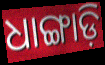
ଧାଙ୍ଗାଡ଼ି